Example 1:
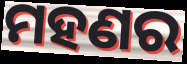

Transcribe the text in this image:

ମହଣର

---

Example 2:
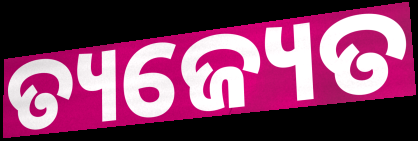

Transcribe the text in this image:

ତ୍ୟଜ୍ୟେତ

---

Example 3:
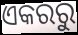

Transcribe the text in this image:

ଏକରରୁ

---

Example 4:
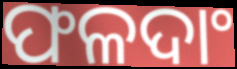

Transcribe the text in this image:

ଫଳଦାଂ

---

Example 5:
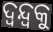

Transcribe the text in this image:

ଦ୍ଵନ୍ଦ୍ଵକୁ